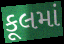
કૂલમાં